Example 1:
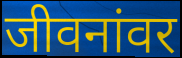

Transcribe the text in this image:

जीवनांवर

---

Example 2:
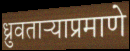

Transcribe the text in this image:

ध्रुवताऱ्याप्रमाणे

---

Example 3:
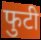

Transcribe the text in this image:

फुटी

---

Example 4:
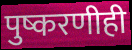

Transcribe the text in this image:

पुष्करणीही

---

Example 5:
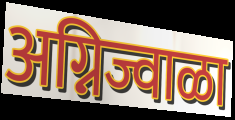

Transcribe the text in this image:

अग्निज्वाळा